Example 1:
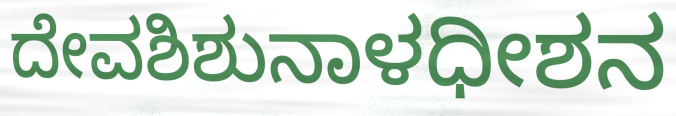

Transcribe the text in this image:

ದೇವಶಿಶುನಾಳಧೀಶನ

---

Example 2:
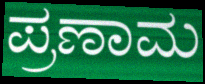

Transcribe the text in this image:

ಪ್ರಣಾಮ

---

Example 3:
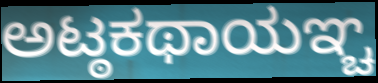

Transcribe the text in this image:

ಅಟ್ಠಕಥಾಯಞ್ಚ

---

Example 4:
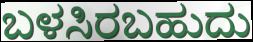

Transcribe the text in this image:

ಬಳಸಿರಬಹುದು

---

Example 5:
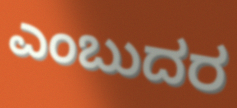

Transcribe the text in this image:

ಎಂಬುದರ